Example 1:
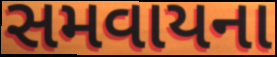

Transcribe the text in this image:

સમવાયના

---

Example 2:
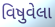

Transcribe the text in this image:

વિષુવેલા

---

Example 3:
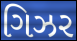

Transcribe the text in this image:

ગિઝર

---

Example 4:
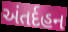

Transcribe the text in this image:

અંતર્દહન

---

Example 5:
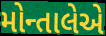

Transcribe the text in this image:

મોન્તાલેએ